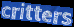
critters